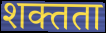
शक्तता